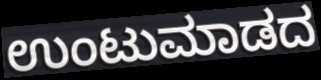
ಉಂಟುಮಾಡದ